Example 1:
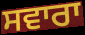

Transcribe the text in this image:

ਸਵਾਰਾ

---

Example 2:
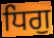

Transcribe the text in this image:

ਧਿਗੁ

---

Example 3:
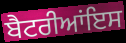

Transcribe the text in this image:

ਬੈਟਰੀਆਂਇਸ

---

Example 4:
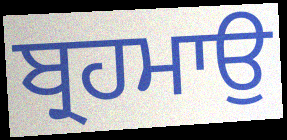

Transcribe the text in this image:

ਬ੍ਰਹਮਾਉ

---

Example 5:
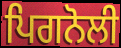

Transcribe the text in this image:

ਪਿਗਨੋਲੀ